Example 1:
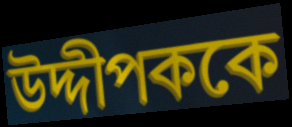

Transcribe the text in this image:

উদ্দীপককে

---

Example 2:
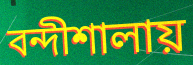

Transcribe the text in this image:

বন্দীশালায়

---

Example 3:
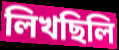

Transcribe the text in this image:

লিখছিলি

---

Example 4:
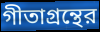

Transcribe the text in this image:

গীতাগ্রন্থের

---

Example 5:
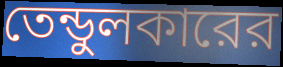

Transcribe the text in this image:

তেন্ডুলকারের